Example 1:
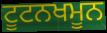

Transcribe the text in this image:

ਟੂਟਨਖਮੂਨ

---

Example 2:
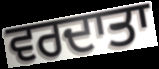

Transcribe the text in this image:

ਵਰਦਾਤਾ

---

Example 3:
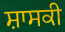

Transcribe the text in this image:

ਸ਼ਾਸਕੀ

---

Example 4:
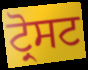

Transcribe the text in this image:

ਟ੍ਰੋਸਟ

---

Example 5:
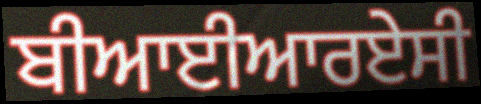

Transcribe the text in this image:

ਬੀਆਈਆਰਏਸੀ